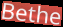
Bethe